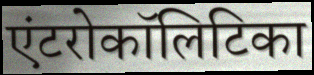
एंटरोकॉलिटिका